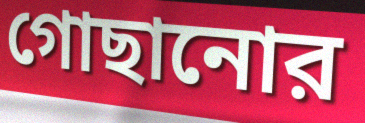
গোছানোর